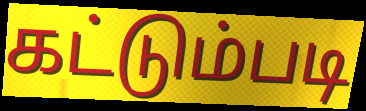
கட்டும்படி